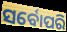
ସର୍ବୋପରି